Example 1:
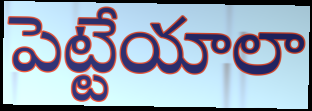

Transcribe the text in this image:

పెట్టేయాలా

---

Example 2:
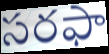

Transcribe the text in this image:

సరఫా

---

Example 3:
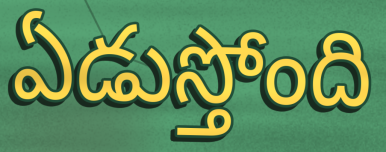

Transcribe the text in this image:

ఏడుస్తోంది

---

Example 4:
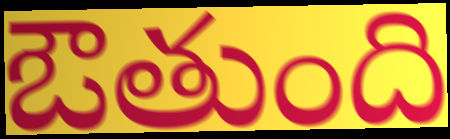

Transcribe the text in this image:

ఔతుంది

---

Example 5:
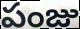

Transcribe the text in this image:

పంజు